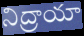
నిద్రాయా